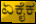
ಏಕೈಕ